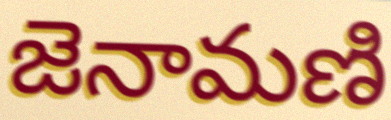
జెనామణి